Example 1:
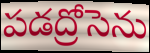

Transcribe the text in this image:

పడద్రోసెను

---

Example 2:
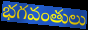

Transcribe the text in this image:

భగవంతులు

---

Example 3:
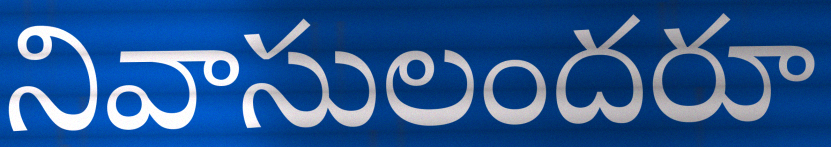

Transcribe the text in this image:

నివాసులందరూ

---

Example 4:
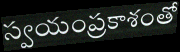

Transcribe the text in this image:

స్వయంప్రకాశంతో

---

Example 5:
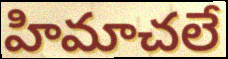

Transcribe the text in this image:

హిమాచలే